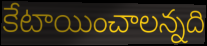
కేటాయించాలన్నది